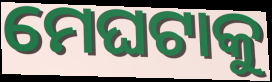
ମେଘଟାକୁ